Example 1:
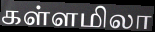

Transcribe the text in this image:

கள்ளமிலா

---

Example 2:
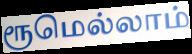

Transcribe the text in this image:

ரூமெல்லாம்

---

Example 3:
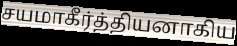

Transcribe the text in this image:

சயமாகீர்த்தியனாகிய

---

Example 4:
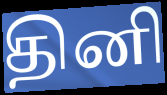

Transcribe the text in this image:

தினி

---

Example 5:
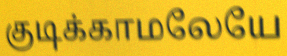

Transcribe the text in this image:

குடிக்காமலேயே